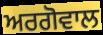
ਅਰਗੋਵਾਲ